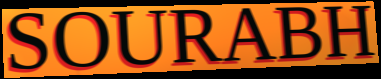
SOURABH